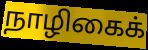
நாழிகைக்